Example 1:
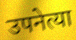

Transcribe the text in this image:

उपनेत्या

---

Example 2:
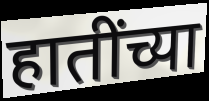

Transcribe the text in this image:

हातींच्या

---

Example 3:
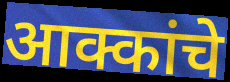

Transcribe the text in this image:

आक्कांचे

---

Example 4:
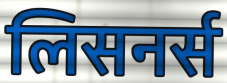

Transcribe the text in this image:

लिसनर्स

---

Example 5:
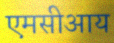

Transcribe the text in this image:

एमसीआय